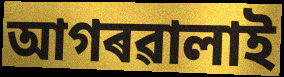
আগৰৱালাই